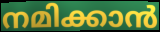
നമിക്കാൻ